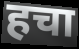
हचा